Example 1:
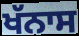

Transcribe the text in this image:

ਖੱਨਾਸ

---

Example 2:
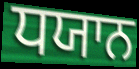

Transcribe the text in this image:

ਧਯਾਨ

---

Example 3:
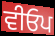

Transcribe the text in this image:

ਵੀਓਪ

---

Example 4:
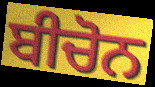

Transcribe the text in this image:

ਬੀਚੋਨ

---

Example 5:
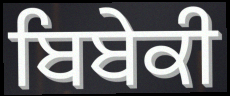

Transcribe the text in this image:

ਬਿਬੇਕੀ